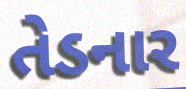
તેડનાર